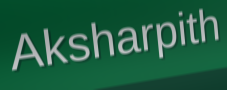
Aksharpith